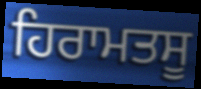
ਹਿਰਾਮਤਸੂ